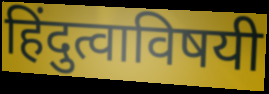
हिंदुत्वाविषयी